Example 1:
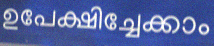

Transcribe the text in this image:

ഉപേക്ഷിച്ചേക്കാം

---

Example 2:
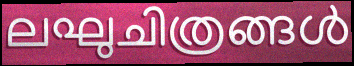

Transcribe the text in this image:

ലഘുചിത്രങ്ങൾ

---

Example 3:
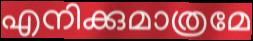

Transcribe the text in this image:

എനിക്കുമാത്രമേ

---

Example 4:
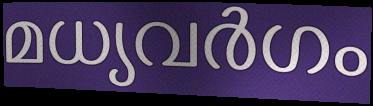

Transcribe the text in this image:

മധ്യവർഗം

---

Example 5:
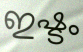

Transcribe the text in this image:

ഇഷ്ടം